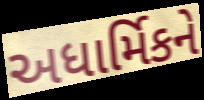
અધાર્મિકને